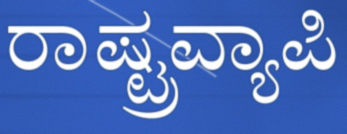
ರಾಷ್ಟ್ರವ್ಯಾಪಿ